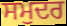
ਸਮੁਦਰ